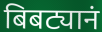
बिबट्यानं